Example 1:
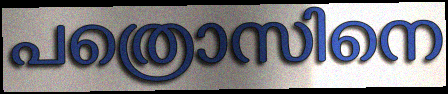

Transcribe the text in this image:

പത്രൊസിനെ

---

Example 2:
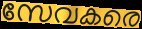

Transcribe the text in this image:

സേവകരെ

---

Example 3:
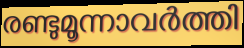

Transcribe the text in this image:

രണ്ടുമൂന്നാവർത്തി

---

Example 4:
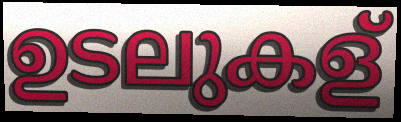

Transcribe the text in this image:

ഉടലുകള്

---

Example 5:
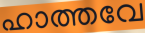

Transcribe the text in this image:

ഹാത്തവേ